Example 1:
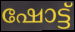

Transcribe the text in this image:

ഷോട്ട്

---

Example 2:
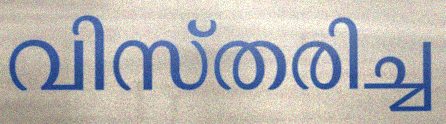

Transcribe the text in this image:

വിസ്തരിച്ച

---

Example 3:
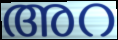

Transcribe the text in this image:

അറ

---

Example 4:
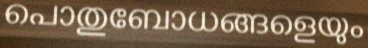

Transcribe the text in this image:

പൊതുബോധങ്ങളെയും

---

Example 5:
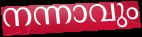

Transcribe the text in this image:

നന്നാവും